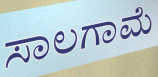
ಸಾಲಗಾಮೆ